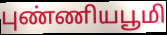
புண்ணியபூமி